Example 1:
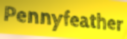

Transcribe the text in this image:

Pennyfeather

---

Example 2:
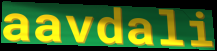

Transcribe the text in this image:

aavdali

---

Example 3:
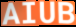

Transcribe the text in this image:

AIUB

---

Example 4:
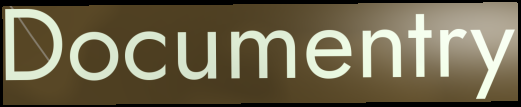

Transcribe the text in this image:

Documentry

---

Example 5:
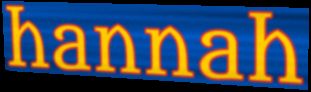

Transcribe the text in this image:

hannah